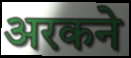
अरकने